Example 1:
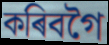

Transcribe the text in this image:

কৰিবগৈ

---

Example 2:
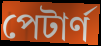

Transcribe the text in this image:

পেটাৰ্ণ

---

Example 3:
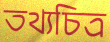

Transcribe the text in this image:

তথ্যচিত্ৰ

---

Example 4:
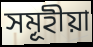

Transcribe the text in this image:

সমূহীয়া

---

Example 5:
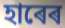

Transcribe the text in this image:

হাৰেৰ